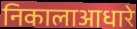
निकालाआधारे